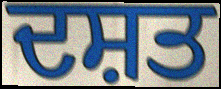
ਦਸ਼ਤ